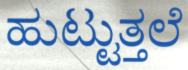
ಹುಟ್ಟುತ್ತಲೆ